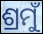
ଶ୍ରମୁଁ